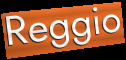
Reggio